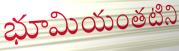
భూమియంతటిని